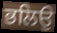
ਭਲਿਉ